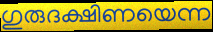
ഗുരുദക്ഷിണയെന്ന